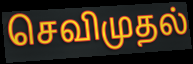
செவிமுதல்